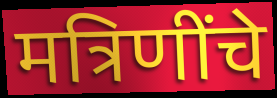
मत्रिणींचे